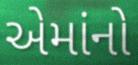
એમાંનો